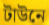
টাউনে